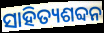
ସାହିତ୍ୟଶବ୍ଦନ